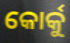
କୋର୍କୁ